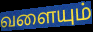
வளையும்